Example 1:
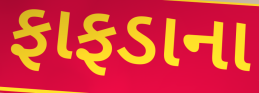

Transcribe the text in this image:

ફાફડાના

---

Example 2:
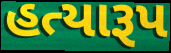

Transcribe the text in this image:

હત્યારૂપ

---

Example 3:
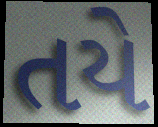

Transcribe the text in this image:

તયે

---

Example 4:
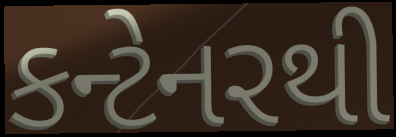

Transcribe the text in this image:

કન્ટેનરથી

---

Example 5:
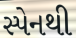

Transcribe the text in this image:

સ્પેનથી